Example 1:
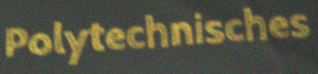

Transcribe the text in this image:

Polytechnisches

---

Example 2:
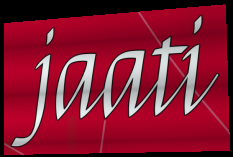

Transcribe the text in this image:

jaati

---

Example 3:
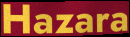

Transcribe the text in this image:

Hazara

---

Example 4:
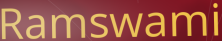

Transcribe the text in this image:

Ramswami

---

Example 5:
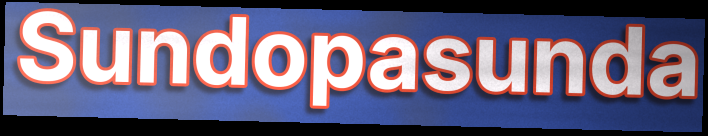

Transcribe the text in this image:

Sundopasunda